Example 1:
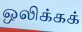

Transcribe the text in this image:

ஒலிக்கக்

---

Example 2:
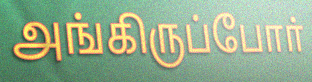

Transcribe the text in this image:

அங்கிருப்போர்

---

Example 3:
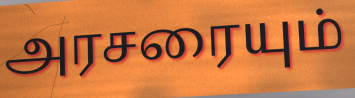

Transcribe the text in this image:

அரசரையும்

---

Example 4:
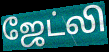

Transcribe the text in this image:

ஜேட்லி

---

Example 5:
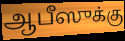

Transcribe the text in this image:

ஆபீஸுக்கு